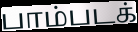
பாம்படக்